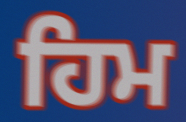
ਹਿਮ